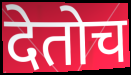
देतोच